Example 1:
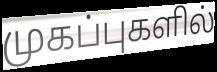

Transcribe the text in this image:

முகப்புகளில்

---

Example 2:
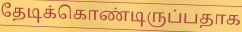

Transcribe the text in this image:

தேடிக்கொண்டிருப்பதாக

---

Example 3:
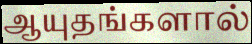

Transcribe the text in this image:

ஆயுதங்களால்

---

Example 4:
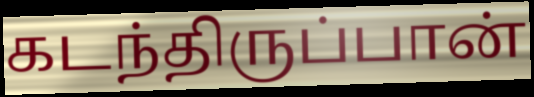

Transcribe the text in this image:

கடந்திருப்பான்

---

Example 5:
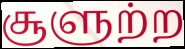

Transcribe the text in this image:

சூளுற்ற